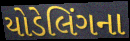
યોડેલિંગના